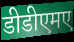
डीडीएमए